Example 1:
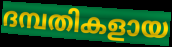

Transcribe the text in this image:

ദമ്പതികളായ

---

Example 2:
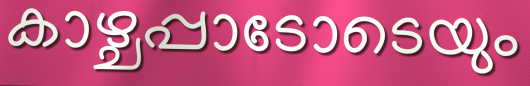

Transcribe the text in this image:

കാഴ്ചപ്പാടോടെയും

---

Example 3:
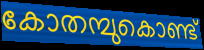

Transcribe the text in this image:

കോതമ്പുകൊണ്ട്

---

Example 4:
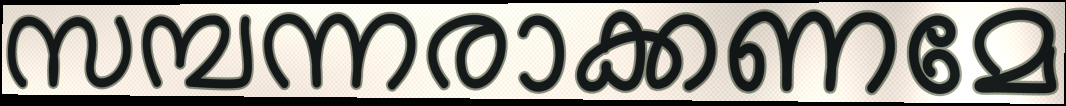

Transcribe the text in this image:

സമ്പന്നരാക്കണമേ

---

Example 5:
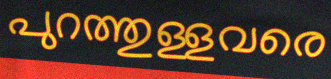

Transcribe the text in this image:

പുറത്തുള്ളവരെ